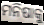
ମନିଷାକୁ